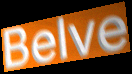
Belve